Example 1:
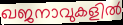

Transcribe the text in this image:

ഖജനാവുകളിൽ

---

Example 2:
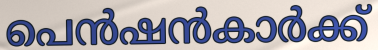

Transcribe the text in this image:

പെൻഷൻകാർക്ക്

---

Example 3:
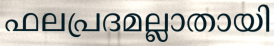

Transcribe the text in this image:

ഫലപ്രദമല്ലാതായി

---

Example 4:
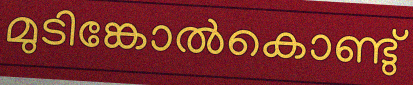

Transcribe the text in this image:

മുടിങ്കോൽകൊണ്ടു്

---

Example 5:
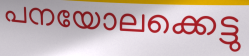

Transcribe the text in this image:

പനയോലക്കെട്ടു